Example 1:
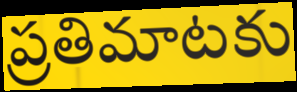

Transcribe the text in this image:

ప్రతిమాటకు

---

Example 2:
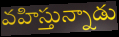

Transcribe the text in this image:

వహిస్తున్నాడు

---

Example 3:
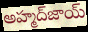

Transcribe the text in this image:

అహ్మద్‌జాయ్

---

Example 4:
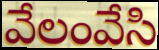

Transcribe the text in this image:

వేలంవేసి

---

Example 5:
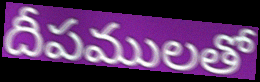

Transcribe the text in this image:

దీపములతో